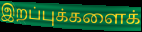
இறப்புக்களைக்